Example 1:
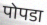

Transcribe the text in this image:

पोपडा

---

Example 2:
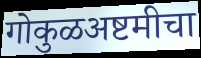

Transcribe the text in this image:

गोकुळअष्टमीचा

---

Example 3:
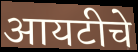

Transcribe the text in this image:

आयटीचे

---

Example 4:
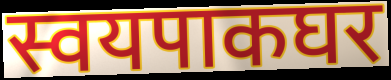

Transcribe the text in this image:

स्वयपाकघर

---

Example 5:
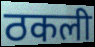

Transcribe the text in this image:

ठकली